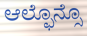
ಆಲ್ಫೊನ್ಸೊ